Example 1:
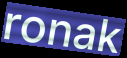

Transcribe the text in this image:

ronak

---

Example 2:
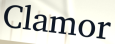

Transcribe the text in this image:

Clamor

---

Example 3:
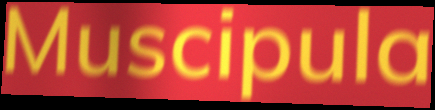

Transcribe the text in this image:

Muscipula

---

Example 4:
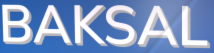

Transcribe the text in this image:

BAKSAL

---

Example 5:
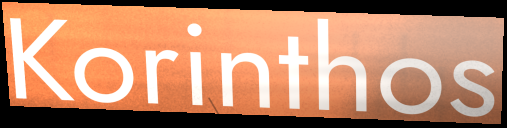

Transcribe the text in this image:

Korinthos